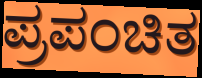
ಪ್ರಪಂಚಿತ